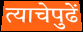
त्याचेपुढें